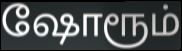
ஷோரூம்